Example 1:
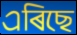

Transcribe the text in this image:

এৰিছে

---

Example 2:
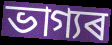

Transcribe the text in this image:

ভাগ্যৰ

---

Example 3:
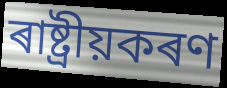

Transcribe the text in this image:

ৰাষ্ট্ৰীয়কৰণ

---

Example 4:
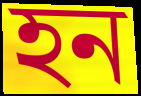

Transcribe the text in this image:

হন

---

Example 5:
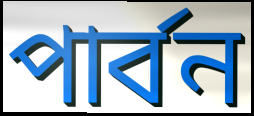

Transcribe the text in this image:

পাৰ্বন